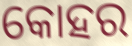
କୋହର